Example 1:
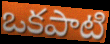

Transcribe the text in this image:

ఒకపాటి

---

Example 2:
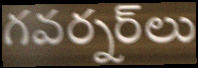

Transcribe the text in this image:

గవర్నర్‌లు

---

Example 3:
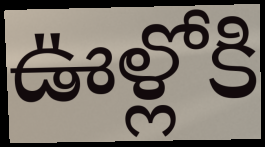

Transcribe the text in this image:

ఊళ్లోకి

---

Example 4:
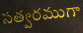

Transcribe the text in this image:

సత్వరముగా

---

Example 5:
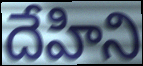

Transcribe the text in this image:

దేహిని